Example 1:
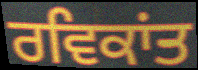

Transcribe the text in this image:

ਰਵਿਕਾਂਤ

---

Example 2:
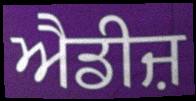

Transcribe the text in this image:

ਐਡੀਜ਼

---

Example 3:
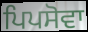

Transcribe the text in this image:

ਪਿਪਸੋਵਾ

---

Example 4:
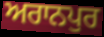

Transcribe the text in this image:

ਅਰਾਨਪੁਰ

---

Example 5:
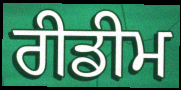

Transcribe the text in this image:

ਰੀਡੀਮ